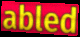
abled